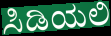
ಸಿಡಿಯಲಿ